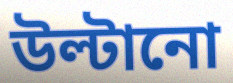
উল্টানো